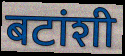
बटांशी